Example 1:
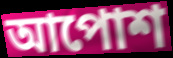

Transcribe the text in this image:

আপোশ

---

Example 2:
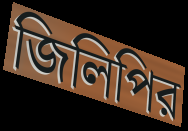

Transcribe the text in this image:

জিলিপির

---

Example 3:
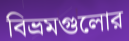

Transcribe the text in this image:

বিভ্রমগুলোর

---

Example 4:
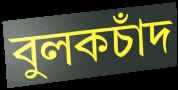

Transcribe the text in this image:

বুলকচাঁদ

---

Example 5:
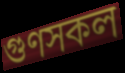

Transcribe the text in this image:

গুণসকল